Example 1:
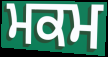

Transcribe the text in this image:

ਮਕਮ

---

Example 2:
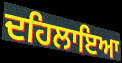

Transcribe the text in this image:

ਦਹਿਲਾਇਆ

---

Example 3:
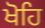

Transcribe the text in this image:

ਖੋਹਿ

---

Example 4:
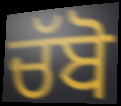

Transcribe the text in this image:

ਚੱਬੋ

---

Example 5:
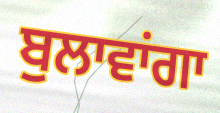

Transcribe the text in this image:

ਬੁਲਾਵਾਂਗਾ